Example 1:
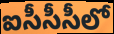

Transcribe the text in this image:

ఐసీసీసీలో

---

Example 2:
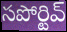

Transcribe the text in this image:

సపోర్టివ్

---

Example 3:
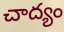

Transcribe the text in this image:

చాద్యం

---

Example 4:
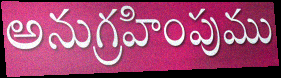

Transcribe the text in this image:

అనుగ్రహింపుము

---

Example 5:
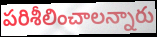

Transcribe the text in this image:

పరిశీలించాలన్నారు